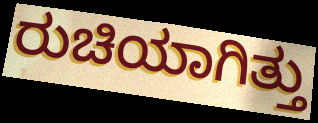
ರುಚಿಯಾಗಿತ್ತು